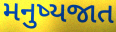
મનુષ્યજાત